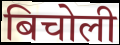
बिचोली